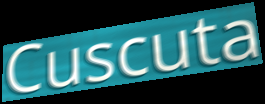
Cuscuta